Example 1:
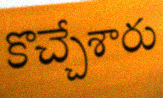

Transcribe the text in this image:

కొచ్చేశారు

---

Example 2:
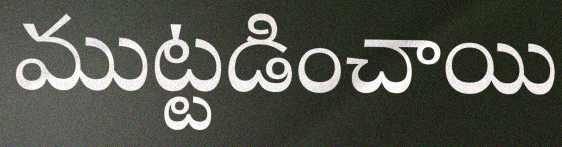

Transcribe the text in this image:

ముట్టడించాయి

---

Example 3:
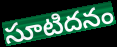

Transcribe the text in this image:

సూటిదనం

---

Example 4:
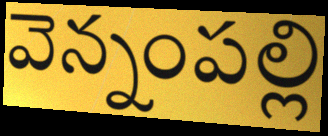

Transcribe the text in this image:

వెన్నంపల్లి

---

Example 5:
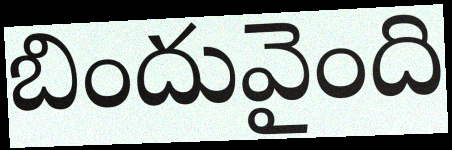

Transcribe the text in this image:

బిందువైంది